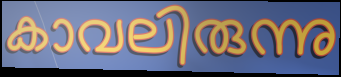
കാവലിരുന്നു